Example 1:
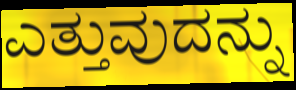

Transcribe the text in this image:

ಎತ್ತುವುದನ್ನು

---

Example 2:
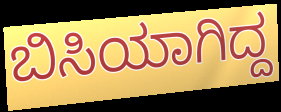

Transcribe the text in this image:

ಬಿಸಿಯಾಗಿದ್ದ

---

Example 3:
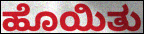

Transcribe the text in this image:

ಹೊಯಿತು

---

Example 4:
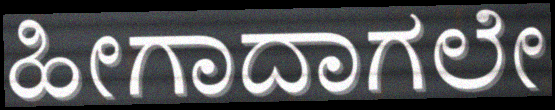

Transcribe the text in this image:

ಹೀಗಾದಾಗಲೇ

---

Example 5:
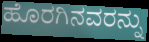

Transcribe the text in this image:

ಹೊರಗಿನವರನ್ನು